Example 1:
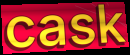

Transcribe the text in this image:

cask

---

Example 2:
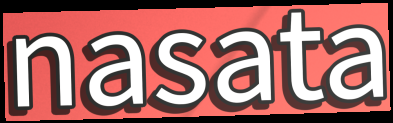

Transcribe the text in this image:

nasata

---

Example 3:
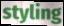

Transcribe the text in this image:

styling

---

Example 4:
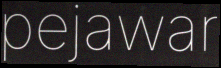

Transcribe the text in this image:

pejawar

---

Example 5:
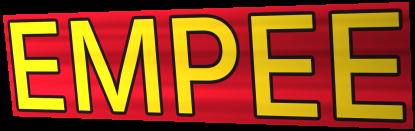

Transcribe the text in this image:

EMPEE